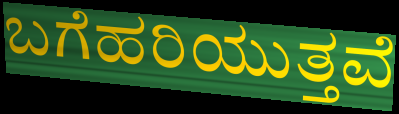
ಬಗೆಹರಿಯುತ್ತವೆ